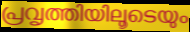
പ്രവൃത്തിയിലൂടെയും